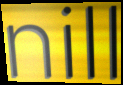
nill